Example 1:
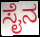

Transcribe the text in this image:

ಸೈನ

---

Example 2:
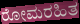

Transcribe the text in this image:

ರೋಮರಹಿತ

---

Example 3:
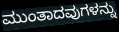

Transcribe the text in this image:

ಮುಂತಾದವುಗಳನ್ನು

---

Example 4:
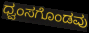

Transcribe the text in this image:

ಧ್ವಂಸಗೊಂಡವು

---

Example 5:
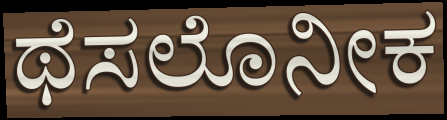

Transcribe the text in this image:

ಥೆಸಲೊನೀಕ